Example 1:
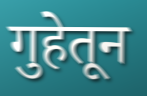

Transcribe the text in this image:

गुहेतून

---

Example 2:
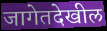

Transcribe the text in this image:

जागेतदेखील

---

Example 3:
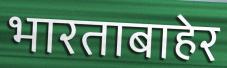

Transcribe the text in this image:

भारताबाहेर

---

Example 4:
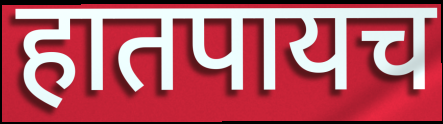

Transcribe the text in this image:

हातपायच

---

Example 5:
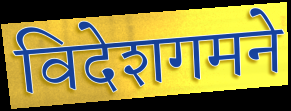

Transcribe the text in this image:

विदेशगमने